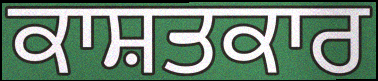
ਕਾਸ਼ਤਕਾਰ